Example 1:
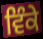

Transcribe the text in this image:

ਵਿੰਕੇ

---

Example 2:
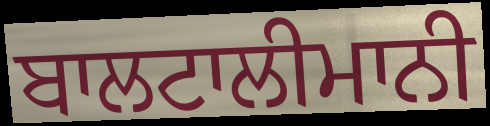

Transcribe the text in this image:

ਬਾਲਟਾਲੀਮਾਨੀ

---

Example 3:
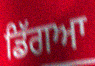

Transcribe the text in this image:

ਡਿੱਗਆ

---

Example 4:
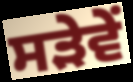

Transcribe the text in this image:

ਸੜੇਵੇਂ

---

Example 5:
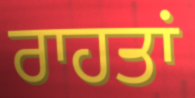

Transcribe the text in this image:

ਰਾਹਤਾਂ